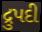
દ્રુપદી